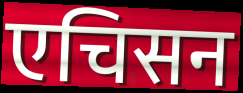
एचिसन